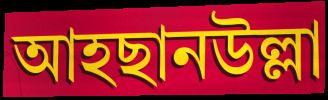
আহছানউল্লা